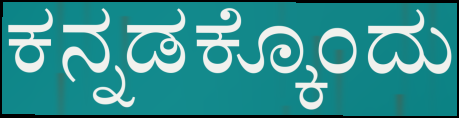
ಕನ್ನಡಕ್ಕೊಂದು